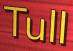
Tull